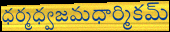
ధర్మధ్వజమధార్మికమ్